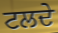
ਟਲਦੇ